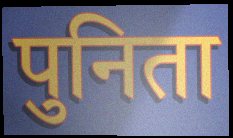
पुनिता